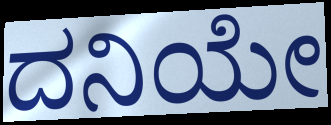
ದನಿಯೇ